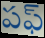
పఫ్